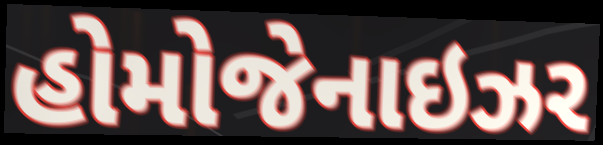
હોમોજેનાઇઝર